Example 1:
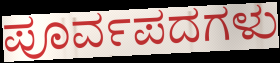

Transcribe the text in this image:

ಪೂರ್ವಪದಗಳು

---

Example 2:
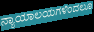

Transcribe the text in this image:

ನ್ಯಾಯಾಲಯಗಳಿಂದಲೂ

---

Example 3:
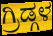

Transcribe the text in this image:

ಗ್ರಿಡ್ಗಳ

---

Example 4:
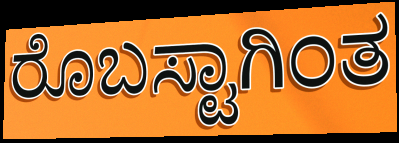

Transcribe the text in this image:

ರೊಬಸ್ಟಾಗಿಂತ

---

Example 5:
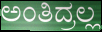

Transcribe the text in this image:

ಅಂತಿದ್ರಲ್ಲ